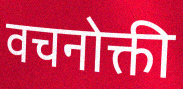
वचनोक्ती